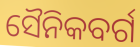
ସୈନିକବର୍ଗ